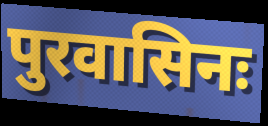
पुरवासिनः